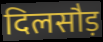
दिलसौड़